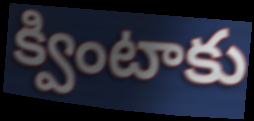
క్వింటాకు